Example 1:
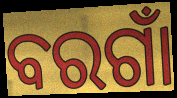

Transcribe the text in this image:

ବରଗାଁ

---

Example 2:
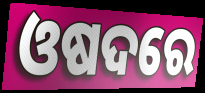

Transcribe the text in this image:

ଓଷଦରେ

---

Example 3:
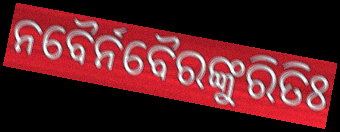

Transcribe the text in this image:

ନବୈର୍ନବୈରଙ୍କୁରିତିଃ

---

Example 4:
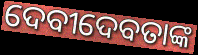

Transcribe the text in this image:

ଦେବୀଦେବତାଙ୍କ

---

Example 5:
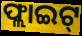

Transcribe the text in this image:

ଫ୍ଲାଇଟ୍